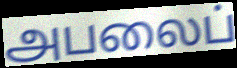
அபலைப்